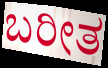
ಬರೀತ